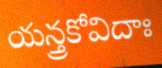
యన్త్రకోవిదాః